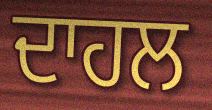
ਦਾਹਲ